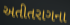
અતીતરાગના